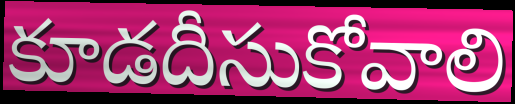
కూడదీసుకోవాలి